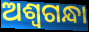
ଅଶ୍ୱଗନ୍ଧା